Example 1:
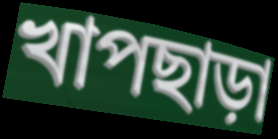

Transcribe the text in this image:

খাপছাড়া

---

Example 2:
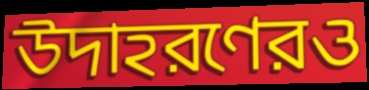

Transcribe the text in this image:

উদাহরণেরও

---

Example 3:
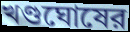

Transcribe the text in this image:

খণ্ডঘোষের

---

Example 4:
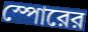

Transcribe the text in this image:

স্পোরের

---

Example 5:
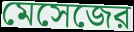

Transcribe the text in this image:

মেসেজের